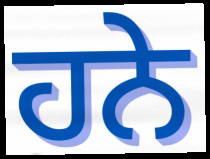
ਹਨੇ